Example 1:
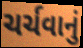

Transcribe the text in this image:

ચર્ચવાનું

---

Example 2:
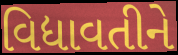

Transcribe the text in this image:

વિદ્યાવતીને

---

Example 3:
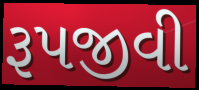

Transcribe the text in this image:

રૂપજીવી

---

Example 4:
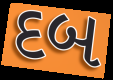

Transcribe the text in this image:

દબ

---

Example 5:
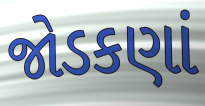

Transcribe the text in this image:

જોડકણાં